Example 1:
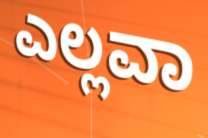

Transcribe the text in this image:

ಎಲ್ಲವಾ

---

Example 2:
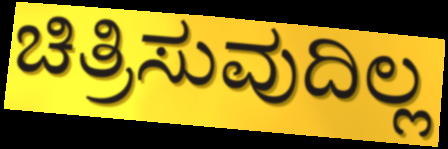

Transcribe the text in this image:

ಚಿತ್ರಿಸುವುದಿಲ್ಲ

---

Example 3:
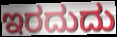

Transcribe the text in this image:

ಇರದುದು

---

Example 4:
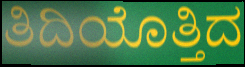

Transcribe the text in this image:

ತಿದಿಯೊತ್ತಿದ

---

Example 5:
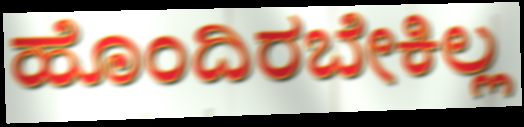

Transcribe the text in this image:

ಹೊಂದಿರಬೇಕಿಲ್ಲ